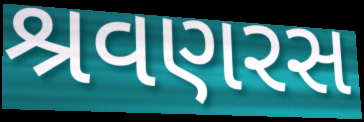
શ્રવણરસ